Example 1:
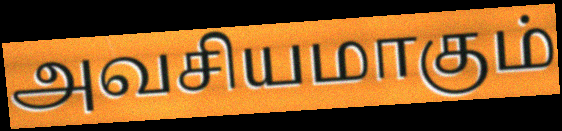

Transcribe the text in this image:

அவசியமாகும்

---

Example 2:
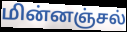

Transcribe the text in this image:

மின்னஞ்சல்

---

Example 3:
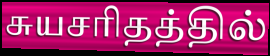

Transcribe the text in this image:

சுயசரிதத்தில்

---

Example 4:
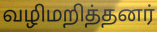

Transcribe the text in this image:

வழிமறித்தனர்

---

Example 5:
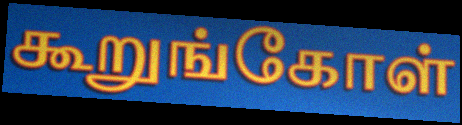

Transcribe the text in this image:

கூறுங்கோள்